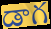
డాగ